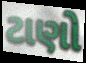
ટાણો